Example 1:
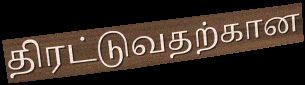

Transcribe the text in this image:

திரட்டுவதற்கான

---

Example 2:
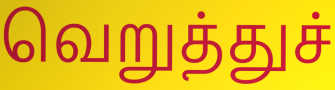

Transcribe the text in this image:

வெறுத்துச்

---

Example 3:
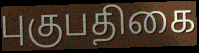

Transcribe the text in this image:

புகுபதிகை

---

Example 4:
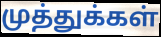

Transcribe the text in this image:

முத்துக்கள்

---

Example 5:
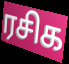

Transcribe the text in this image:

ரசிக